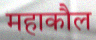
महाकौल